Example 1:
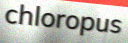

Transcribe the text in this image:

chloropus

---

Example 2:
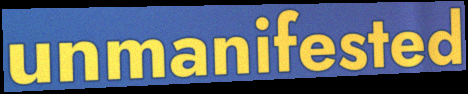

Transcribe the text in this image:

unmanifested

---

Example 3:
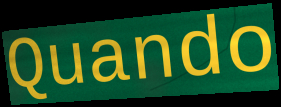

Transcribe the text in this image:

Quando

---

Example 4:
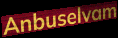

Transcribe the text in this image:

Anbuselvam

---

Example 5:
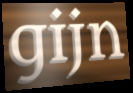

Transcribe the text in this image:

gijn